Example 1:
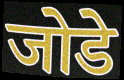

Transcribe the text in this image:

जोडे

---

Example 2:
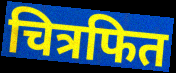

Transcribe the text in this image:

चित्रफित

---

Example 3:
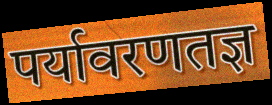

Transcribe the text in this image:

पर्यावरणतज्ञ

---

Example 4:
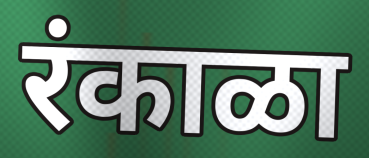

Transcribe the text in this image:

रंकाळा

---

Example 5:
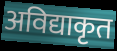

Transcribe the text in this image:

अविद्याकृत